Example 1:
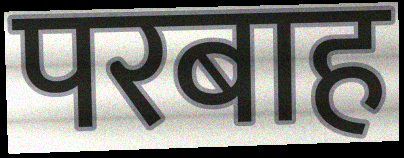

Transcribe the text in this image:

परबाह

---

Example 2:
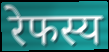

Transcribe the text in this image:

रेफस्य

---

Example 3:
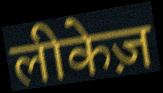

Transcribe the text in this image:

लीकेज़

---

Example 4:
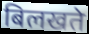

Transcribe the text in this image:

बिलखते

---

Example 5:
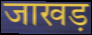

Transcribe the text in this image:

जाखड़